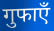
गुफाएँ